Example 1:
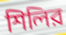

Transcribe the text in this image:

শিলির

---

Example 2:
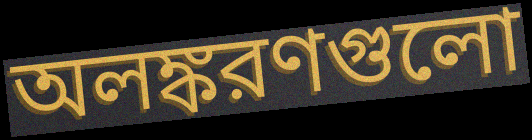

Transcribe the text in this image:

অলঙ্করণগুলো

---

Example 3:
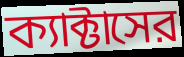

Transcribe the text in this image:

ক্যাক্টাসের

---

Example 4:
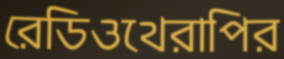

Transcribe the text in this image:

রেডিওথেরাপির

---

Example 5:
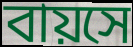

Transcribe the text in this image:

বায়সে